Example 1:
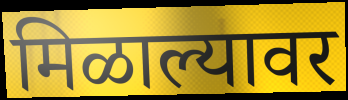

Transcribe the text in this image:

मिळाल्यावर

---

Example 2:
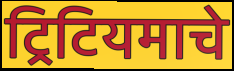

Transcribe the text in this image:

ट्रिटियमाचे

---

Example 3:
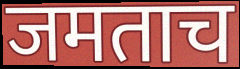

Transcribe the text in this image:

जमताच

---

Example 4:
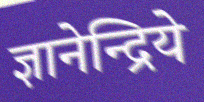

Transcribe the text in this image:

ज्ञानेन्द्रिये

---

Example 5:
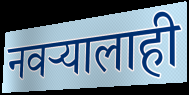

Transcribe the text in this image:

नवऱ्यालाही